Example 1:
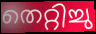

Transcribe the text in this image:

തെറ്റിച്ചു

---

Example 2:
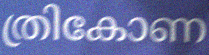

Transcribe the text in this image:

ത്രികോണ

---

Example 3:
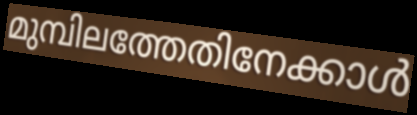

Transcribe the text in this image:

മുമ്പിലത്തേതിനേക്കാൾ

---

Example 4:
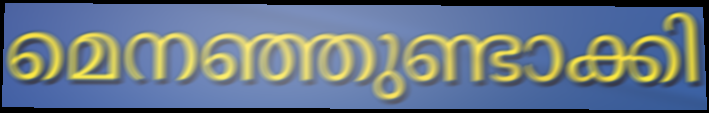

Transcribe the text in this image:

മെനഞ്ഞുണ്ടാക്കി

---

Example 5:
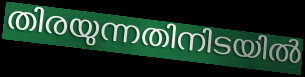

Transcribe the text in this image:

തിരയുന്നതിനിടയിൽ